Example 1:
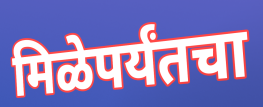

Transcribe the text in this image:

मिळेपर्यंतचा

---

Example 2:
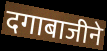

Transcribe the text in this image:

दगाबाजीने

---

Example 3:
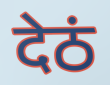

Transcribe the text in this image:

देठं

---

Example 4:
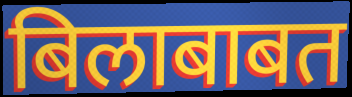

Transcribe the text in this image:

बिलाबाबत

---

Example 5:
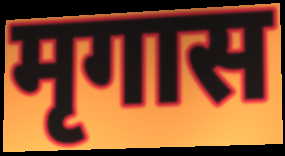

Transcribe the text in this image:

मृगास